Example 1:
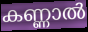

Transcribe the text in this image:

കണ്ണാൽ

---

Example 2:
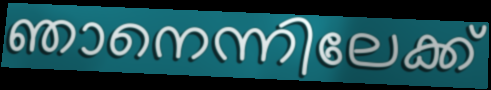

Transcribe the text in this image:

ഞാനെന്നിലേക്ക്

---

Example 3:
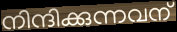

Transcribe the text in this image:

നിന്ദിക്കുന്നവന്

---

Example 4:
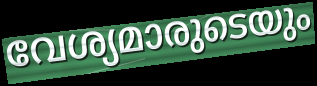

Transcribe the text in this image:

വേശ്യമാരുടെയും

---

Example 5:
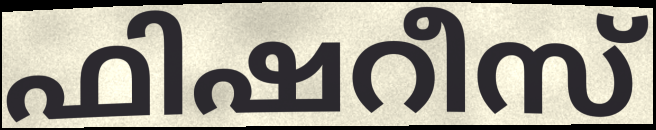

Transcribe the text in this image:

ഫിഷറീസ്